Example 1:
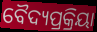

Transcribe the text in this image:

ବୈଦ୍ୟପ୍ରକ୍ରିୟା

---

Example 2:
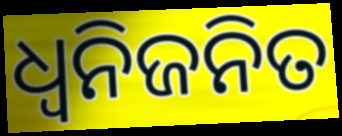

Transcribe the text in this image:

ଧ୍ଵନିଜନିତ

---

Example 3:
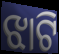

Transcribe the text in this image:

ଝାଟି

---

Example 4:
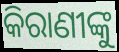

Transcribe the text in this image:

କିରାଣୀଙ୍କୁ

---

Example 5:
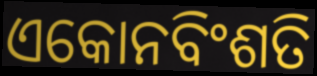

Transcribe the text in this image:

ଏକୋନବିଂଶତି